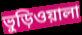
ভুড়িওয়ালা